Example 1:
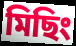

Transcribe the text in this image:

মিছিং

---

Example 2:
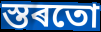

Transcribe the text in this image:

স্তৰতো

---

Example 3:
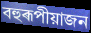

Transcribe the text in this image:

বহুৰূপীয়াজন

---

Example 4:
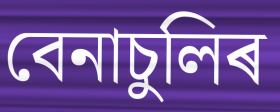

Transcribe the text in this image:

বেনাচুলিৰ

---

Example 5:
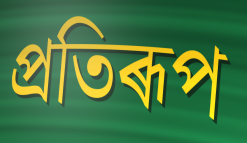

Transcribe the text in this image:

প্ৰতিৰূপ